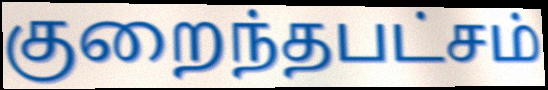
குறைந்தபட்சம்